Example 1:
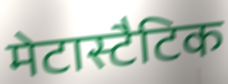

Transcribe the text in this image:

मेटास्टैटिक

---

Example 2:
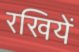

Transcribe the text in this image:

रखियें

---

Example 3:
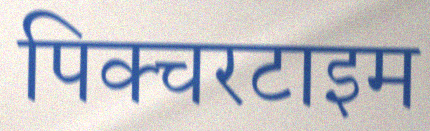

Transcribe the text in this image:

पिक्चरटाइम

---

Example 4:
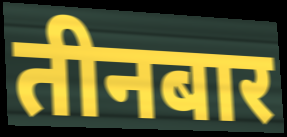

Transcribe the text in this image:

तीनबार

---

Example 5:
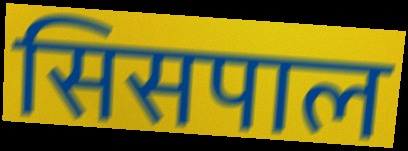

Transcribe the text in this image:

सिसपाल